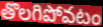
తొలగిపోవటం